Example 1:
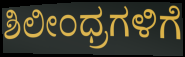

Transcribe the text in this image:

ಶಿಲೀಂಧ್ರಗಳಿಗೆ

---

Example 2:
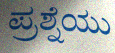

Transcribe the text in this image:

ಪ್ರಶ್ನೆಯು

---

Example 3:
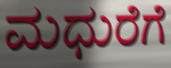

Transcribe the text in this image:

ಮಧುರೆಗೆ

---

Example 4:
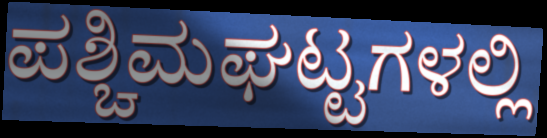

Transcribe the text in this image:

ಪಶ್ಚಿಮಘಟ್ಟಗಳಲ್ಲಿ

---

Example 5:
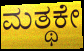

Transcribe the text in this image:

ಮತ್ಥಕೇ